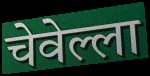
चेवेल्ला